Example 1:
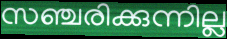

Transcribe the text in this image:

സഞ്ചരിക്കുന്നില്ല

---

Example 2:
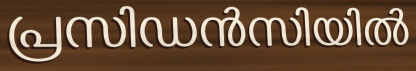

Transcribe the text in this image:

പ്രസിഡൻസിയിൽ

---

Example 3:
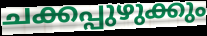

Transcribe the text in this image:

ചക്കപ്പുഴുക്കും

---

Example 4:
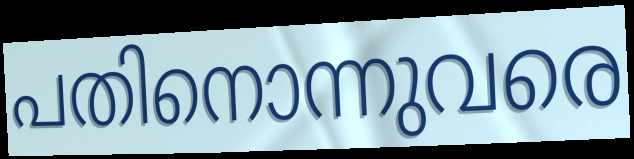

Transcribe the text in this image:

പതിനൊന്നുവരെ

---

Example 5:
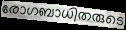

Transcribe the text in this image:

രോഗബാധിതരുടെ